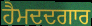
ਹੈਮਦਦਗਾਰ